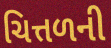
ચિત્તળની